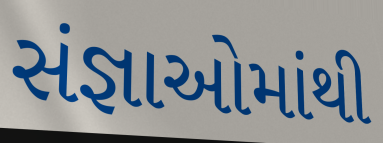
સંજ્ઞાઓમાંથી